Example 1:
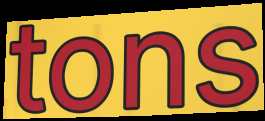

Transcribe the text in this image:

tons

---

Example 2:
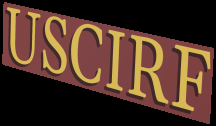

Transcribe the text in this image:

USCIRF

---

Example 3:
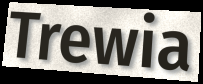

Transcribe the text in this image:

Trewia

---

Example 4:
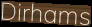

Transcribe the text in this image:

Dirhams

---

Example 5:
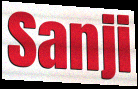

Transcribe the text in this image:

Sanji